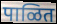
पाळित